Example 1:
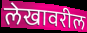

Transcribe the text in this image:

लेखावरील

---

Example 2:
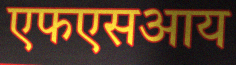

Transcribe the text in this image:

एफएसआय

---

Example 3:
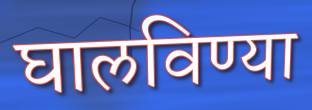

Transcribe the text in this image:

घालविण्या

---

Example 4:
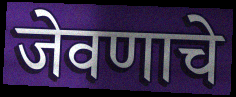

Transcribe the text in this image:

जेवणाचे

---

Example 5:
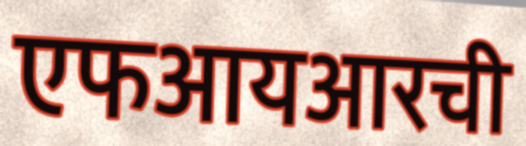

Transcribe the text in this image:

एफआयआरची